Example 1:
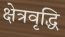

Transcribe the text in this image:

क्षेत्रवृद्धि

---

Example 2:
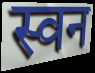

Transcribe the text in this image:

स्वन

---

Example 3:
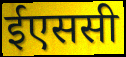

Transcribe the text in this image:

ईएससी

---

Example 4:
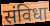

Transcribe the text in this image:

संविधा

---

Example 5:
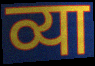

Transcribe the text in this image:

व्या